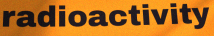
radioactivity